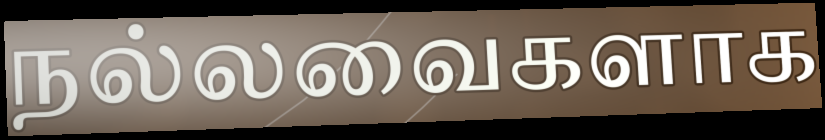
நல்லவைகளாக